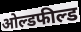
ओल्डफील्ड